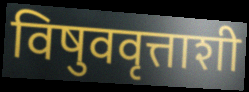
विषुववृत्ताशी